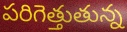
పరిగెత్తుతున్న